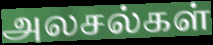
அலசல்கள்